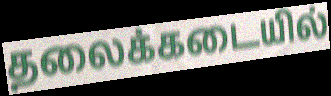
தலைக்கடையில்